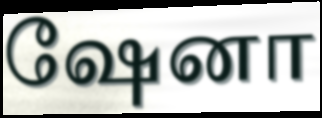
ஷேனா